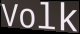
Volk